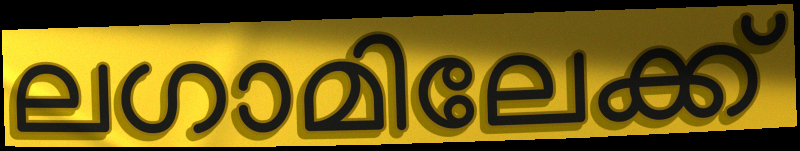
ലഗാമിലേക്ക്